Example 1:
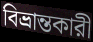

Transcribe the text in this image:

বিভ্রান্তকারী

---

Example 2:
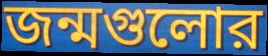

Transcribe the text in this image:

জন্মগুলোর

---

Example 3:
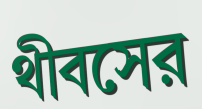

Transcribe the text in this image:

থীবসের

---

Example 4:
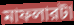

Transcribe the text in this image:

মাফলারটা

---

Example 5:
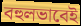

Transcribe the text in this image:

বহুলভাবেই